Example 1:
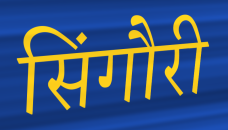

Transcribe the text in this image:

सिंगौरी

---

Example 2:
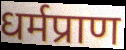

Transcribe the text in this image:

धर्मप्राण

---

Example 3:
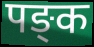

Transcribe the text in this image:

पङ्क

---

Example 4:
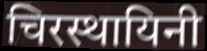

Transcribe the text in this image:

चिरस्थायिनी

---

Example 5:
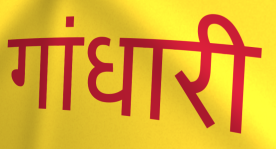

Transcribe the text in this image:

गांधारी